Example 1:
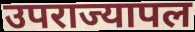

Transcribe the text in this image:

उपराज्यापल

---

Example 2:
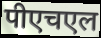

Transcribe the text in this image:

पीएचएल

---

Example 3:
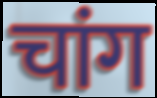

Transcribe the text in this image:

चांग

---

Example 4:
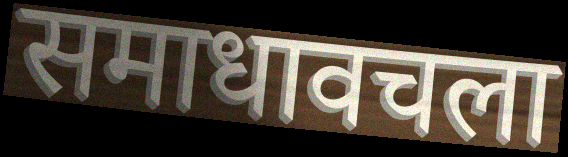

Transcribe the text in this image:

समाधावचला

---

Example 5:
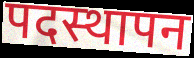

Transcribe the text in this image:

पदस्थापन